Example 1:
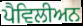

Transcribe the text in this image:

ਪੈਵਿਲੀਅਨ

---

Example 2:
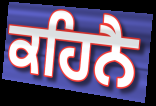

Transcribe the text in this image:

ਕਹਿਨੈ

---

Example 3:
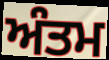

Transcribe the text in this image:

ਅੰਤਮ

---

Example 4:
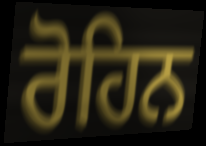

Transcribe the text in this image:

ਰੋਹਿਨ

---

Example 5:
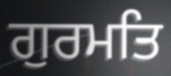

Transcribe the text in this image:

ਗੁਰਮਤਿ